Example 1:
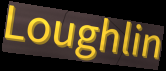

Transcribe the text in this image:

Loughlin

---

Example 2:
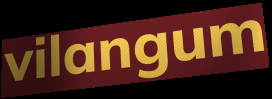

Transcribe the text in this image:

vilangum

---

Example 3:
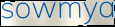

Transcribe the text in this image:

sowmya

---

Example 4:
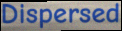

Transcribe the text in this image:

Dispersed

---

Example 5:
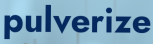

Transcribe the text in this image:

pulverize